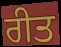
ਰੀਤ